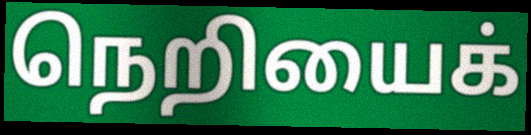
நெறியைக்